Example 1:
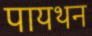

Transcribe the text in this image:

पायथन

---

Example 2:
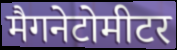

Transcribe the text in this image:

मैगनेटोमीटर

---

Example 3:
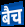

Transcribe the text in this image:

बैच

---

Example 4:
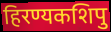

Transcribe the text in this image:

हिरण्यकशिपु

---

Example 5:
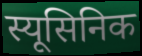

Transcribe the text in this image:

स्यूसिनिक